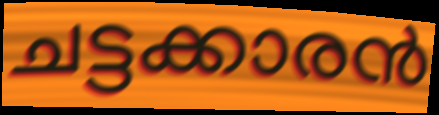
ചട്ടക്കാരൻ